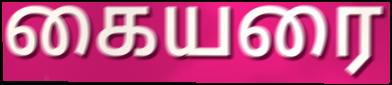
கையரை